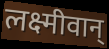
लक्ष्मीवान्